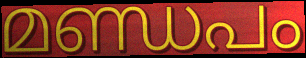
മണ്ഡപം